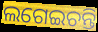
ଲଗେଇଚନ୍ତି